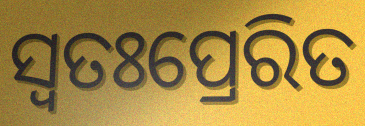
ସ୍ୱତଃପ୍ରେରିତ